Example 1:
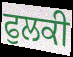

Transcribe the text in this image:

ਫੁਲਕੀ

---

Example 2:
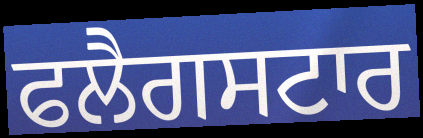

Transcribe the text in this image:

ਫਲੈਗਸਟਾਰ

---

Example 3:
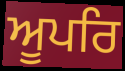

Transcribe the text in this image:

ਅੂਪਰਿ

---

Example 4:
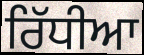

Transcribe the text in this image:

ਰਿੱਧੀਆ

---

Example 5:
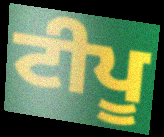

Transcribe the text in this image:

ਟੀਪੂ